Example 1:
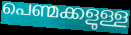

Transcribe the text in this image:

പെണ്മക്കളുള്ള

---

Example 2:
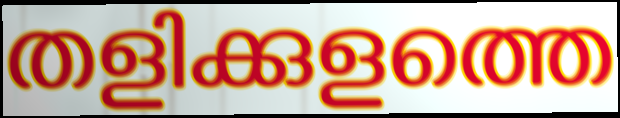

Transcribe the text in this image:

തളിക്കുളത്തെ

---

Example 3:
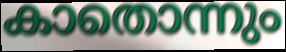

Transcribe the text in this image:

കാതൊന്നും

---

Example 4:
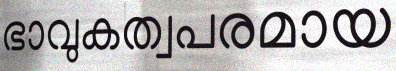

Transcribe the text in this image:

ഭാവുകത്വപരമായ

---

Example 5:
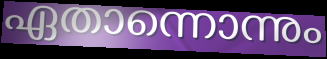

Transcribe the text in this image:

ഏതാന്നൊന്നും